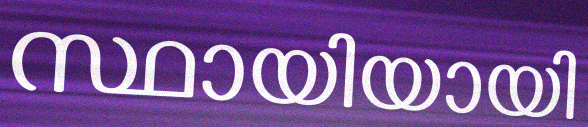
സ്ഥായിയായി